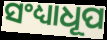
ସଂଧ୍ୟାଧୂପ